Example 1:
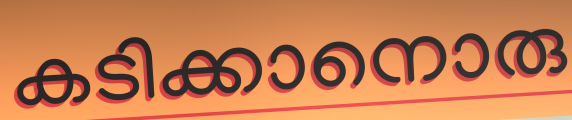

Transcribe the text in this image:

കടിക്കാനൊരു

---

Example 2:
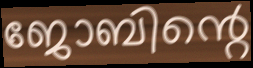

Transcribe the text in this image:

ജോബിന്റെ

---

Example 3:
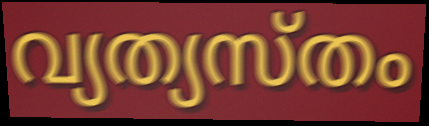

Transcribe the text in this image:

വ്യത്യസ്തം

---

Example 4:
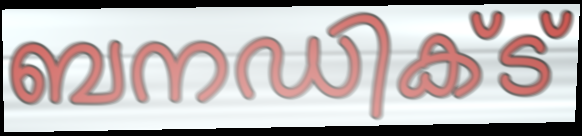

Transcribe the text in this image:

ബനഡിക്ട്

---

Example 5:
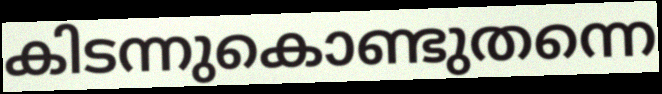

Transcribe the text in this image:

കിടന്നുകൊണ്ടുതന്നെ